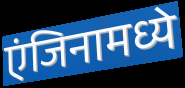
एंजिनामध्ये